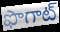
ఫొగాట్